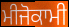
ਮੀਜੋਕਾਮੀ